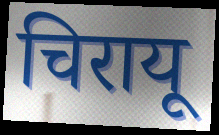
चिरायू